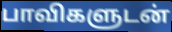
பாவிகளுடன்